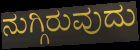
ನುಗ್ಗಿರುವುದು